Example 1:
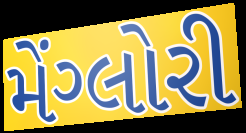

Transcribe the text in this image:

મેંગ્લોરી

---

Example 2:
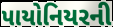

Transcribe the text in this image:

પાયોનિયરની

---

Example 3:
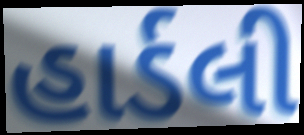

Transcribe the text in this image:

હાર્ડલી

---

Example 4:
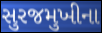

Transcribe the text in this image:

સુરજમુખીના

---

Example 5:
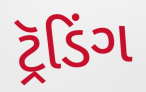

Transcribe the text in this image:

ટ્રૅડિંગ